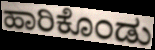
ಹಾರಿಕೊಂಡು